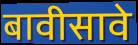
बावीसावे